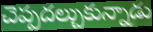
చెప్పదల్చుకున్నాడు